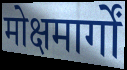
मोक्षमार्गों